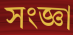
সংজ্ঞা